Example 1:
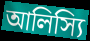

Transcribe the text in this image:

আলিস্যি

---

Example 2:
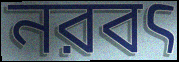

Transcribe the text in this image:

নরবৎ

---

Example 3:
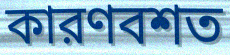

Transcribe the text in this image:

কারণবশত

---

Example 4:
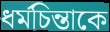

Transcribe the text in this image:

ধর্মচিন্তাকে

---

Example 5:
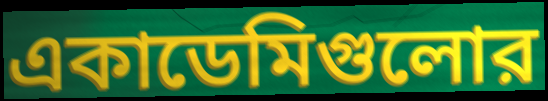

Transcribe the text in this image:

একাডেমিগুলোর